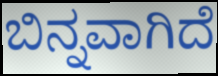
ಬಿನ್ನವಾಗಿದೆ